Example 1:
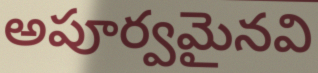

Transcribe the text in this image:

అపూర్వమైనవి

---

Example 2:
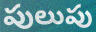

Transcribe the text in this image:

పులుపు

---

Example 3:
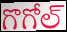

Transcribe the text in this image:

గొగోల్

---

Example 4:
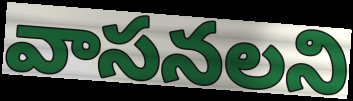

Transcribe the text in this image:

వాసనలని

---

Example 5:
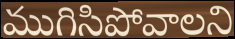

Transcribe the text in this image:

ముగిసిపోవాలని